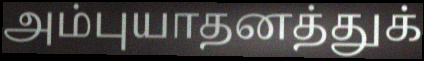
அம்புயாதனத்துக்